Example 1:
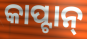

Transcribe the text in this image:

କାପ୍ଟାନ୍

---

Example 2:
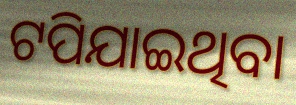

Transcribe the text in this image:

ଟପିଯାଇଥିବା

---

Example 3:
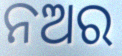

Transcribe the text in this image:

ନଅର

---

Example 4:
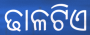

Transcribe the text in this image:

ଢାଳଟିଏ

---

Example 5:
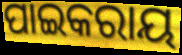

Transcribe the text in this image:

ପାଇକରାୟ